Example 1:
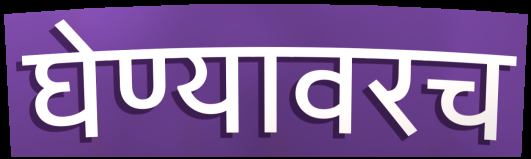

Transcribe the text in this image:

घेण्यावरच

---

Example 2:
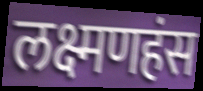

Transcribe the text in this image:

लक्ष्मणहंस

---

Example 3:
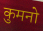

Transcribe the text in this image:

कुमनो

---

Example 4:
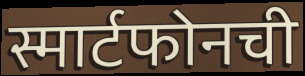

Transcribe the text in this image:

स्मार्टफोनची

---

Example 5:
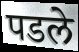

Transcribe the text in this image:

पडले